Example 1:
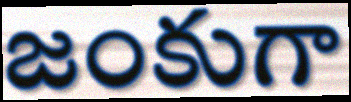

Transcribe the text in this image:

జంకుగా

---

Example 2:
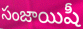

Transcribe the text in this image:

సంజాయిషీ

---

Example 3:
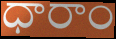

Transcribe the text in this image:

ధారాం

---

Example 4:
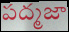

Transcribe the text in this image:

పద్మజా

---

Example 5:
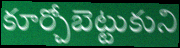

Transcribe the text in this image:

కూర్చోబెట్టుకుని